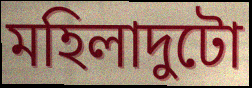
মহিলাদুটো